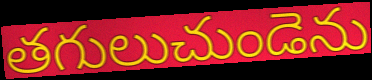
తగులుచుండెను